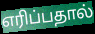
எரிப்பதால்